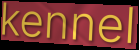
kennel